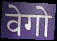
वेगो